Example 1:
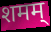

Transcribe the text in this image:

शमम्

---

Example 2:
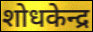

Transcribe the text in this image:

शोधकेन्द्र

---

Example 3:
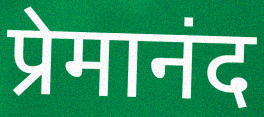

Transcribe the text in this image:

प्रेमानंद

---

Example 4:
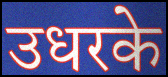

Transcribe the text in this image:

उधरके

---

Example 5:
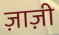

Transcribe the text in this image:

ज़ाज़ी